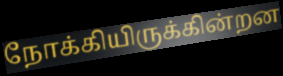
நோக்கியிருக்கின்றன